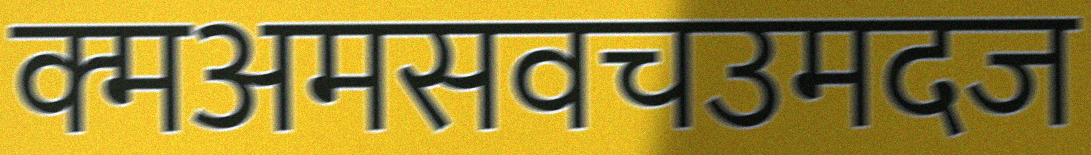
क्मअमसवचउमदज